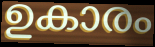
ഉകാരം